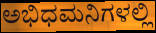
ಅಭಿಧಮನಿಗಳಲ್ಲಿ